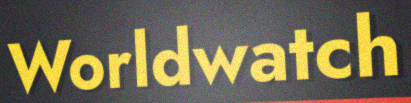
Worldwatch